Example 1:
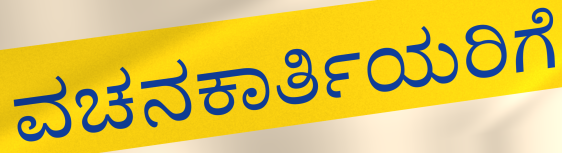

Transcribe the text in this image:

ವಚನಕಾರ್ತಿಯರಿಗೆ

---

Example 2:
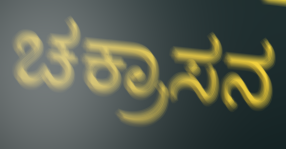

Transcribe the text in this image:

ಚಕ್ರಾಸನ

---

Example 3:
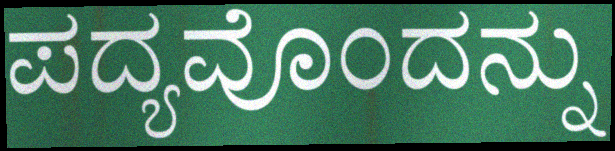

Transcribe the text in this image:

ಪದ್ಯವೊಂದನ್ನು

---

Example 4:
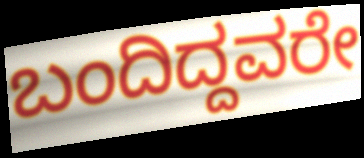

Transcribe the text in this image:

ಬಂದಿದ್ದವರೇ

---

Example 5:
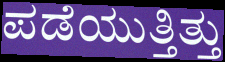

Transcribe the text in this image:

ಪಡೆಯುತ್ತಿತ್ತು